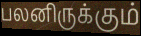
பலனிருக்கும்